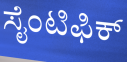
ಸೈಂಟಿಫಿಕ್